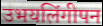
उभयलिंगीपन